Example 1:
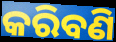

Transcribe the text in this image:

କରିବଣି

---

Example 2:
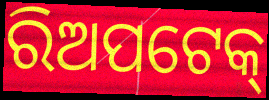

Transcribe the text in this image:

ରିଅପଟେକ୍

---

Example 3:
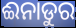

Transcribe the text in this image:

ଈନାଡୁର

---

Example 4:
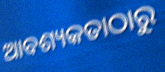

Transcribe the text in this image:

ଆବଶ୍ୟକତାଠାରୁ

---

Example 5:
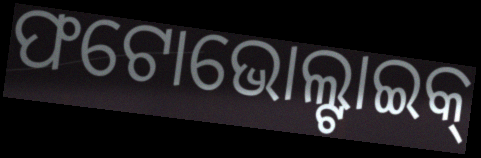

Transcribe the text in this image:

ଫଟୋଭୋଲ୍ଟାଇକ୍